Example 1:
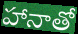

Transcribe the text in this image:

హానాతో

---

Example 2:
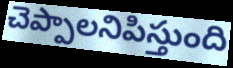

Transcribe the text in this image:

చెప్పాలనిపిస్తుంది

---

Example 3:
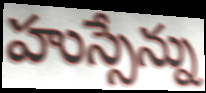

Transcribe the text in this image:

హుస్సేన్ను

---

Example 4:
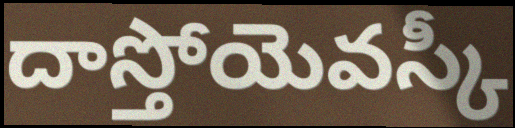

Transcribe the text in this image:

దాస్తోయెవస్కీ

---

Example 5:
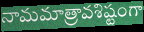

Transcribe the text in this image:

నామమాత్రావశిష్టంగా